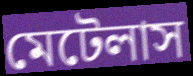
মেটেলাস